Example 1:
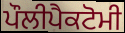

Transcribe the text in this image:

ਪੌਲੀਪੈਕਟੋਮੀ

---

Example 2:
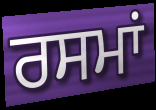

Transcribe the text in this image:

ਰਸਮਾਂ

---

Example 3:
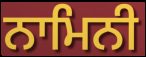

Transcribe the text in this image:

ਨਾਮਿਨੀ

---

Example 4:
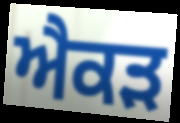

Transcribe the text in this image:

ਐਕੜ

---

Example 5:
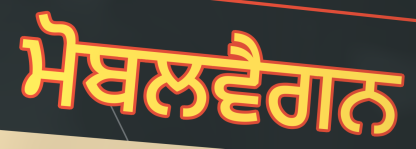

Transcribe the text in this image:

ਮੋਬਲਵੈਗਨ